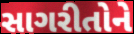
સાગરીતોને